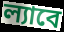
ল্যাবে